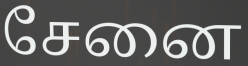
சேனை